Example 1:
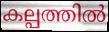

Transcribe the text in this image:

കല്പത്തിൽ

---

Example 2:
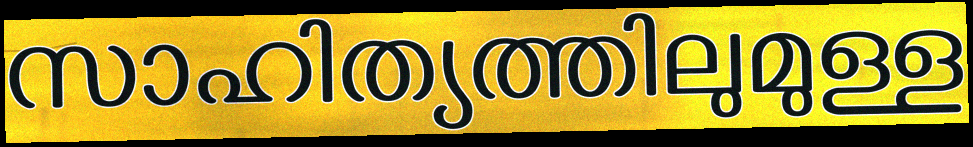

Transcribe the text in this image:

സാഹിത്യത്തിലുമുള്ള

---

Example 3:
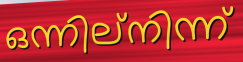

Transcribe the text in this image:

ഒന്നില്നിന്ന്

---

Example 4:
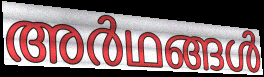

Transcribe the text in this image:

അർഥങ്ങൾ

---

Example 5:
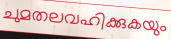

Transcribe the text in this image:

ചുമതലവഹിക്കുകയും